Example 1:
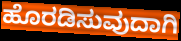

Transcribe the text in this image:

ಹೊರಡಿಸುವುದಾಗಿ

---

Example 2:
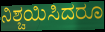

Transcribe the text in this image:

ನಿಶ್ಚಯಿಸಿದರೂ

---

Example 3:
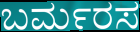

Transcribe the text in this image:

ಬರ್ಮರಸ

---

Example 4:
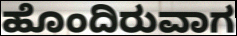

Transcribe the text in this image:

ಹೊಂದಿರುವಾಗ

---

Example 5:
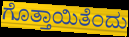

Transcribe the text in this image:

ಗೊತ್ತಾಯಿತೆಂದು